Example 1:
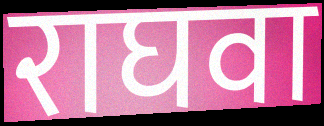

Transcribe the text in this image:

राघवा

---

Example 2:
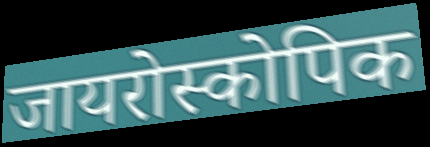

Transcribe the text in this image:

जायरोस्कोपिक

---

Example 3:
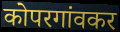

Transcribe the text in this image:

कोपरगांवकर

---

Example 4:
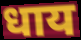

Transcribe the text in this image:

धाय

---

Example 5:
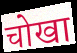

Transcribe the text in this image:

चोखा